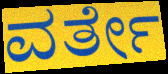
ವರ್ತೇ